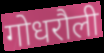
गोधरौली